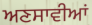
ਅਣਸਾਵੀਆਂ